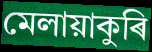
মেলায়াকুৰি